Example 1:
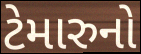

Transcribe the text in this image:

ટેમારુનો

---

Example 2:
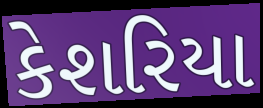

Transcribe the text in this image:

કેશરિયા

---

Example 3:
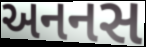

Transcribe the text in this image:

અનનસ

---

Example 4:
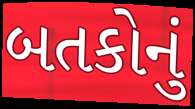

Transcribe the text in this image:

બતકોનું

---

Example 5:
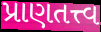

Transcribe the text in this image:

પ્રાણતત્ત્વ